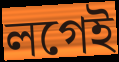
লগেই